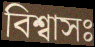
বিশ্বাসঃ